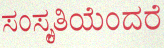
ಸಂಸ್ಕೃತಿಯೆಂದರೆ